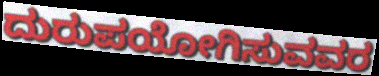
ದುರುಪಯೋಗಿಸುವವರ